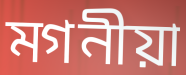
মগনীয়া